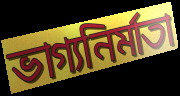
ভাগ্যনির্মাতা